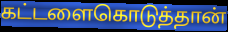
கட்டளைகொடுத்தான்